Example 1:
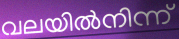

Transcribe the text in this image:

വലയിൽനിന്ന്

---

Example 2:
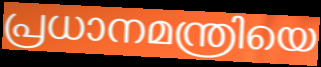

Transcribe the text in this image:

പ്രധാനമന്ത്രിയെ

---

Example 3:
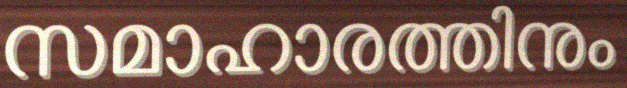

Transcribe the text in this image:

സമാഹാരത്തിനും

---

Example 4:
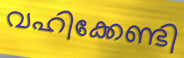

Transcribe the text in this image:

വഹിക്കേണ്ടി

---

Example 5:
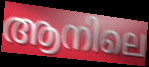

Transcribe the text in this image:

ആനിലെ